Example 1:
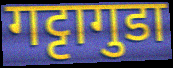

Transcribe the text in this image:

गट्टागुडा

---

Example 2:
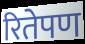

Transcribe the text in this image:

रितेपण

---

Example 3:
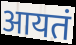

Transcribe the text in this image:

आयतं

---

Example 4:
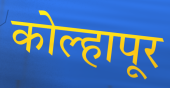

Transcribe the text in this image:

कोल्हापूर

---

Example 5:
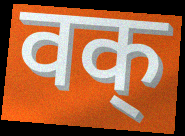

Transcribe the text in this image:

वक्